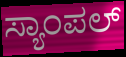
ಸ್ಯಾಂಪಲ್